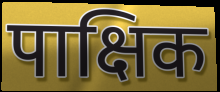
पाक्षिक